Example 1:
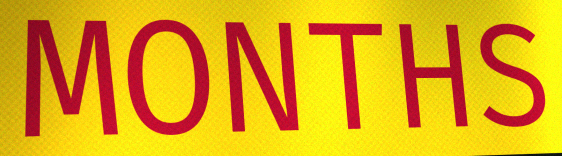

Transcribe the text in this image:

MONTHS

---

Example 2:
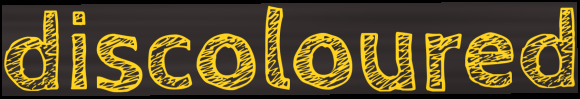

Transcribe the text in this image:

discoloured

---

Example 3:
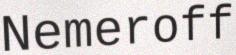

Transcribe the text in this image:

Nemeroff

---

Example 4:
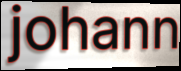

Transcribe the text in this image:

johann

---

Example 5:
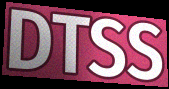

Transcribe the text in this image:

DTSS